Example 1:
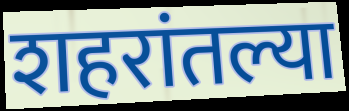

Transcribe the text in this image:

शहरांतल्या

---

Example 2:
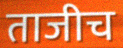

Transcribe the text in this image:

ताजीच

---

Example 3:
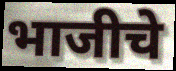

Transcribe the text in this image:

भाजीचे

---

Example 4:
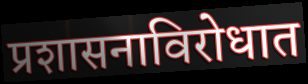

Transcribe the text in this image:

प्रशासनाविरोधात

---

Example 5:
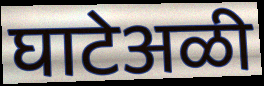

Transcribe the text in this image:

घाटेअळी